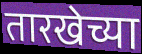
तारखेच्या